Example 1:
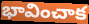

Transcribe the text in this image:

భావించాక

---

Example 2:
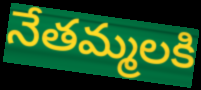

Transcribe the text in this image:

నేతమ్మలకి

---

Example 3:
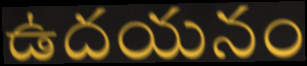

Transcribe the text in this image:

ఉదయనం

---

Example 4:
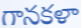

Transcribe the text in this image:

గానకళా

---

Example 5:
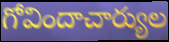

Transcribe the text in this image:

గోవిందాచార్యుల